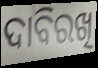
ଦାବିରଖି